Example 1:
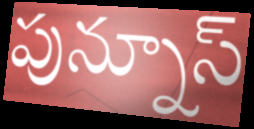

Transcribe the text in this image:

పున్నూస్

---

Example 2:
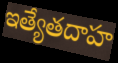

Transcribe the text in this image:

ఇత్యేతదాహ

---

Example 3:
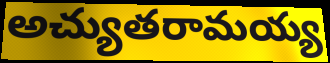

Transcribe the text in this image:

అచ్యుతరామయ్య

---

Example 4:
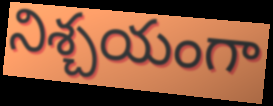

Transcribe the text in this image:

నిశ్చయంగా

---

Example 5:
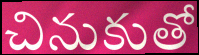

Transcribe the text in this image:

చినుకుతో